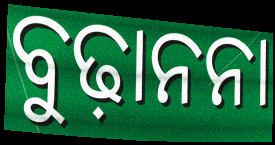
ବୁଢ଼ାନନା